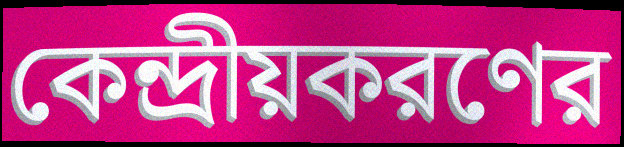
কেন্দ্রীয়করণের